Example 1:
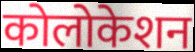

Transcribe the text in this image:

कोलोकेशन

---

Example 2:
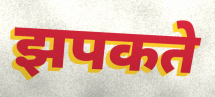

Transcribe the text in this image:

झपकते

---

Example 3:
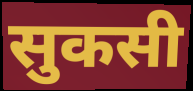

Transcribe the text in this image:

सुकसी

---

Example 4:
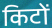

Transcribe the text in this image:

किटों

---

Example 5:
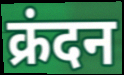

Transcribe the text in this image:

क्रंदन